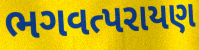
ભગવત્પરાયણ